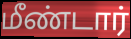
மீண்டார்